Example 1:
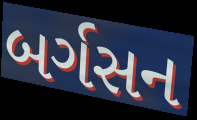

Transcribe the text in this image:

બર્ગસન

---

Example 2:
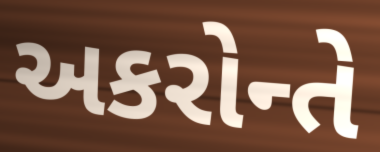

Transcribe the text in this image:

અકરોન્તે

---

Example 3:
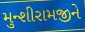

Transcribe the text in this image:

મુન્શીરામજીને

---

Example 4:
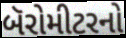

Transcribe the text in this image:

બૅરોમીટરનો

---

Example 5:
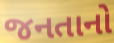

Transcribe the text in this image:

જનતાનો